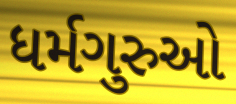
ધર્મગુરુઓ